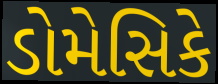
ડોમેસિકે